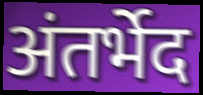
अंतर्भेद